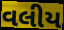
વલીય